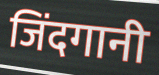
जिंदगानी